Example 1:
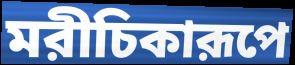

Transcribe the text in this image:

মরীচিকারূপে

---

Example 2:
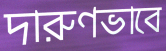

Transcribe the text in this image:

দারুণভাবে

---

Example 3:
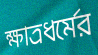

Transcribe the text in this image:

ক্ষাত্রধর্মের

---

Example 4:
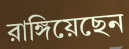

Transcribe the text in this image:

রাঙ্গিয়েছেন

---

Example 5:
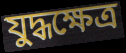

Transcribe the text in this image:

যুদ্ধক্ষেত্র